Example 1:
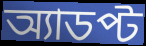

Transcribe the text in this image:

অ্যাডপ্ট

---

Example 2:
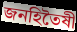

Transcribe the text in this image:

জনহিতৈষী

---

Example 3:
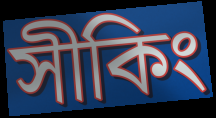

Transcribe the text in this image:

সীকিং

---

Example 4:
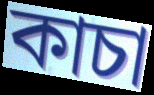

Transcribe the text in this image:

কাচা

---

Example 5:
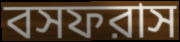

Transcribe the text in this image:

বসফরাস